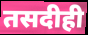
तसदीही